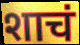
शाचं